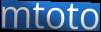
mtoto